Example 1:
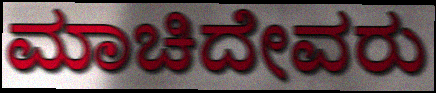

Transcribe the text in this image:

ಮಾಚಿದೇವರು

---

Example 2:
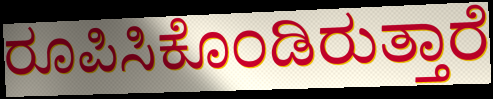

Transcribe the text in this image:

ರೂಪಿಸಿಕೊಂಡಿರುತ್ತಾರೆ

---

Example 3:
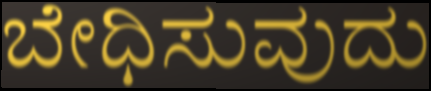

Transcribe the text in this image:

ಬೇಧಿಸುವುದು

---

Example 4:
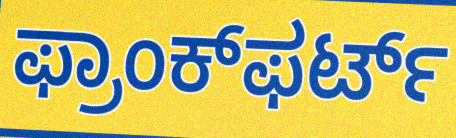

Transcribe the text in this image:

ಫ್ರಾಂಕ್‌ಫರ್ಟ್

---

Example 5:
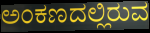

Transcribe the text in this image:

ಅಂಕಣದಲ್ಲಿರುವ